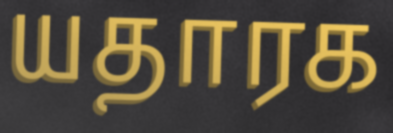
யதாரக